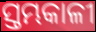
ସ୍ତମ୍ଭକାଳୀ